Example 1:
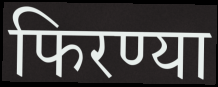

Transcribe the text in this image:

फिरण्या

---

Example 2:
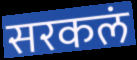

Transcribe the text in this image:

सरकलं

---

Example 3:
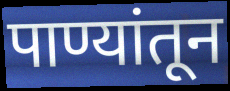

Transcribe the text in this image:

पाण्यांतून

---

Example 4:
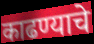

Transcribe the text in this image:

काढण्याचे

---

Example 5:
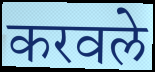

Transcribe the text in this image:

करवले